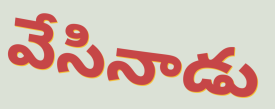
వేసినాడు